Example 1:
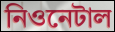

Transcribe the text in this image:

নিওনেটাল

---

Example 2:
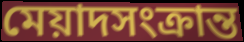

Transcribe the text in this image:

মেয়াদসংক্রান্ত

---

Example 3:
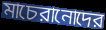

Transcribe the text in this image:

মাচেরানোদের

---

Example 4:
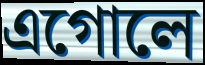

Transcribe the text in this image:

এগোলে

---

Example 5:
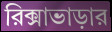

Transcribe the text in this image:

রিক্সাভাড়ার